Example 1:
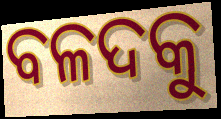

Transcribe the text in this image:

ବଳଦକୁ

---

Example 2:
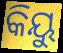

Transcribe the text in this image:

କିୟୁ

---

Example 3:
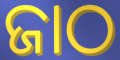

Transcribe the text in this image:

ଜାଠ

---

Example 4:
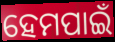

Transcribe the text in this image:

ହେମପାଇଁ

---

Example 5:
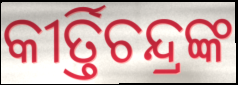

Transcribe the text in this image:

କୀର୍ତ୍ତିଚନ୍ଦ୍ରଙ୍କ